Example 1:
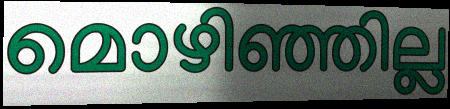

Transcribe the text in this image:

മൊഴിഞ്ഞില്ല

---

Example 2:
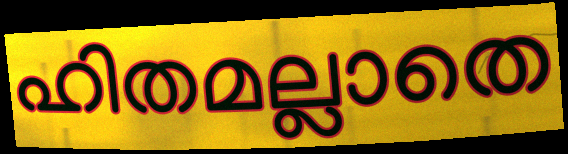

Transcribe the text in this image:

ഹിതമല്ലാതെ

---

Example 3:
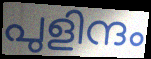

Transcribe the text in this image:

പുളിന്ദം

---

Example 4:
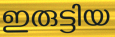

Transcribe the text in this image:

ഇരുട്ടിയ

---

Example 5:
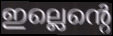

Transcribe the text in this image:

ഇല്ലെന്റെ